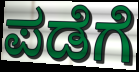
ಪಡೆಗೆ